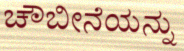
ಚೌಬೀನೆಯನ್ನು